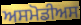
ਅਸਮੋਡੀਅਸ